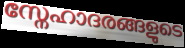
സ്നേഹാദരങ്ങളുടെ